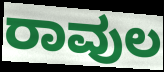
ರಾವುಲ